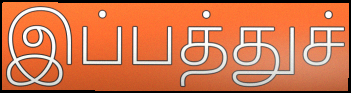
இப்பத்துச்